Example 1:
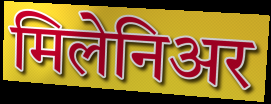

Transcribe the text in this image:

मिलेनिअर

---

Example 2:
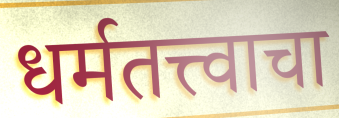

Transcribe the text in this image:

धर्मतत्त्वाचा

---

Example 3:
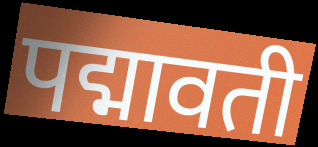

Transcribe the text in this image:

पद्मावती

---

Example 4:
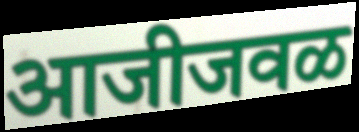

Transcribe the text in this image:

आजीजवळ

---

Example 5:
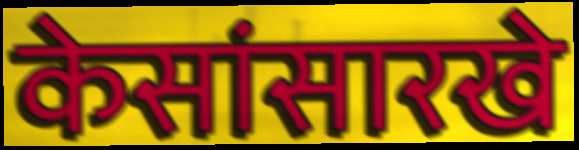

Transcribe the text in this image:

केसांसारखे